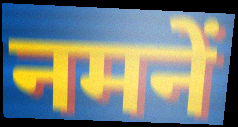
नमनें